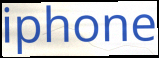
iphone